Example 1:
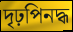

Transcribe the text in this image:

দৃঢ়পিনদ্ধ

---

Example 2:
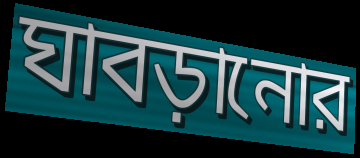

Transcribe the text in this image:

ঘাবড়ানোর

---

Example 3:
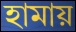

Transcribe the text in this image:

হামায়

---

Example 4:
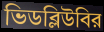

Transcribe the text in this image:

ভিডব্লিউবির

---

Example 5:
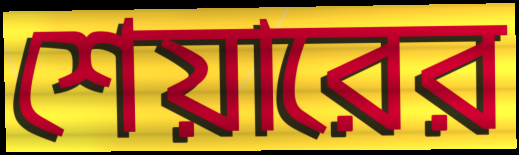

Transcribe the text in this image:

শেয়ারের